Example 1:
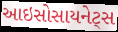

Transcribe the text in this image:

આઇસોસાયનેટ્સ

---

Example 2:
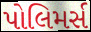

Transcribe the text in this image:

પોલિમર્સ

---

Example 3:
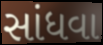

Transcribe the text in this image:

સાંધવા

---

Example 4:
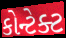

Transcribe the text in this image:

કોન્ટેક્ટ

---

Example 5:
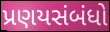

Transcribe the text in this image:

પ્રણયસંબંધો